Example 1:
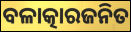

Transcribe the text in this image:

ବଳାତ୍କାରଜନିତ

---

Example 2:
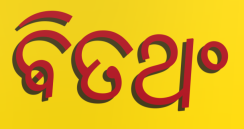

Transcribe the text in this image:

ଵିତଥଂ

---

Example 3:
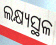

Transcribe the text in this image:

ଲକ୍ଷ୍ୟସ୍ଥଳ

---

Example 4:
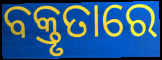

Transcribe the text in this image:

ବକ୍ତୃତାରେ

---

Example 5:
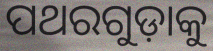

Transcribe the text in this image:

ପଥରଗୁଡ଼ାକୁ